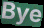
Bye